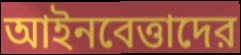
আইনবেত্তাদের